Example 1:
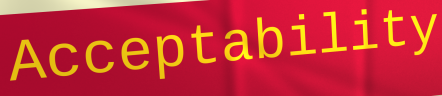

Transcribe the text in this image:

Acceptability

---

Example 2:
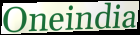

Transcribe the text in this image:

Oneindia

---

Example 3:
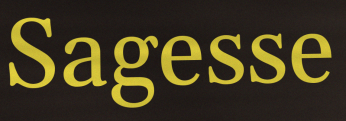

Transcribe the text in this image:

Sagesse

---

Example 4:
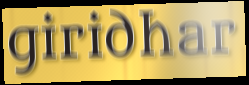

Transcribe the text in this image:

giridhar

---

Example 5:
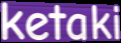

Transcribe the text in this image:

ketaki